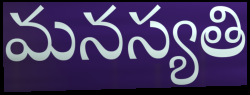
మనస్యతి